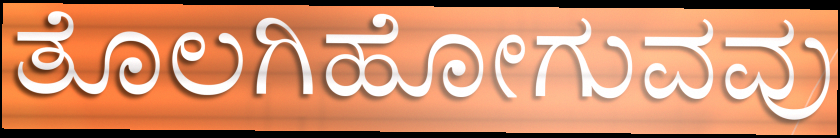
ತೊಲಗಿಹೋಗುವವು